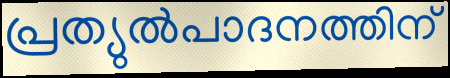
പ്രത്യുൽപാദനത്തിന്